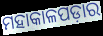
ମହାକାଳପଡ଼ାର